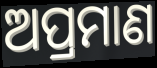
ଅପ୍ରମାଣ